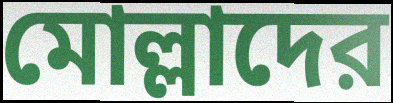
মোল্লাদের